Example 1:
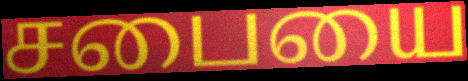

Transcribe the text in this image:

சபையை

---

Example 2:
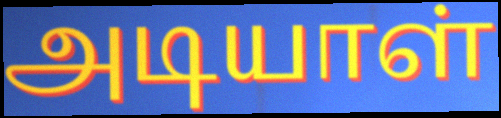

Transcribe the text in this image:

அடியாள்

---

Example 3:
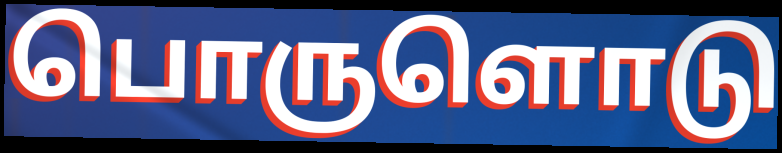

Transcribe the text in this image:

பொருளொடு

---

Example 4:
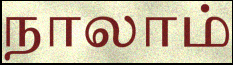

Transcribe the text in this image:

நாலாம்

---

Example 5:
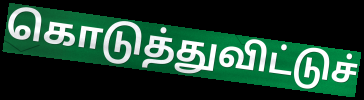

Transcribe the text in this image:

கொடுத்துவிட்டுச்